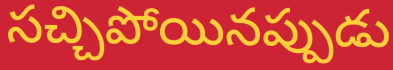
సచ్చిపోయినప్పుడు